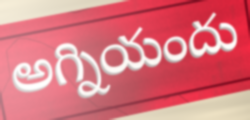
అగ్నియందు